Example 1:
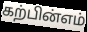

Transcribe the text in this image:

கற்பின்எம்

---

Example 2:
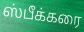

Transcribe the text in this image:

ஸ்பீக்கரை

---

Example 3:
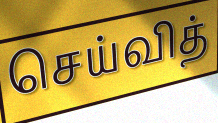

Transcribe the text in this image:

செய்வித்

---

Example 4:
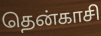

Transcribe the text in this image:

தென்காசி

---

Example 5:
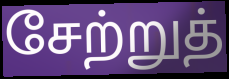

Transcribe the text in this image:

சேற்றுத்